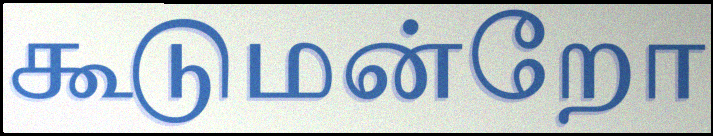
கூடுமன்றோ